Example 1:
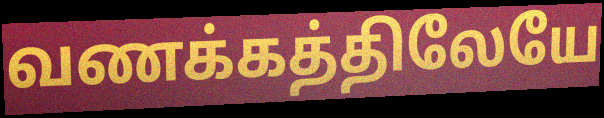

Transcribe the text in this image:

வணக்கத்திலேயே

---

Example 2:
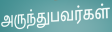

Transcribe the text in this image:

அருந்துபவர்கள்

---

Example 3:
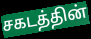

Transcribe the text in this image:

சகடத்தின்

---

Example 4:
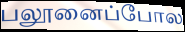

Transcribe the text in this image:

பலூனைப்போல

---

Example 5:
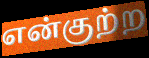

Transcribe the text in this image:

என்குற்ற